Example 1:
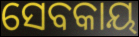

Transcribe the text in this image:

ସେବକାୟ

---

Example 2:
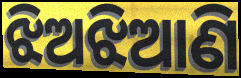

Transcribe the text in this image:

ଝିଅଝିଆଣି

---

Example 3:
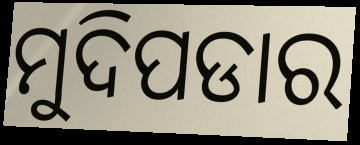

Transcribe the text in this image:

ମୁଦିପଡାର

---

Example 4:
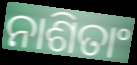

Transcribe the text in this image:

ନାଶିତାଂ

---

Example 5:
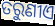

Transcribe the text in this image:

ତରୁଣୀଏ